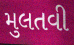
મુલતવી